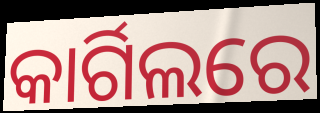
କାର୍ଗିଲରେ